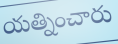
యత్నించారు